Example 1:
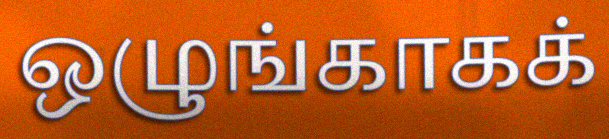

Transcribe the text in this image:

ஒழுங்காகக்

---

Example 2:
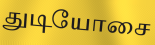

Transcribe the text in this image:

துடியோசை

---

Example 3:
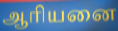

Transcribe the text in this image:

ஆரியனை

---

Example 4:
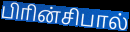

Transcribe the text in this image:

பிரின்சிபால்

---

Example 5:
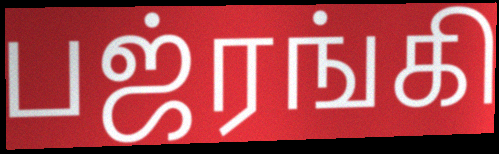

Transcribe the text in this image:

பஜ்ரங்கி